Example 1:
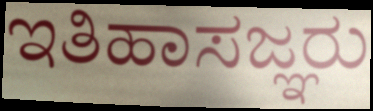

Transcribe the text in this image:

ಇತಿಹಾಸಜ್ಞರು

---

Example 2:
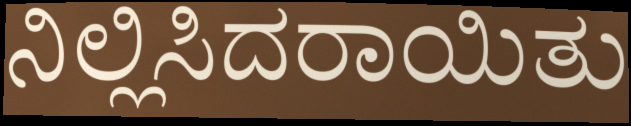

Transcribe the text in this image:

ನಿಲ್ಲಿಸಿದರಾಯಿತು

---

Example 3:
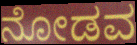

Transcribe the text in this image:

ನೋಡವ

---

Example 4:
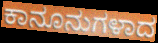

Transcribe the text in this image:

ಕಾನೂನುಗಳಾದ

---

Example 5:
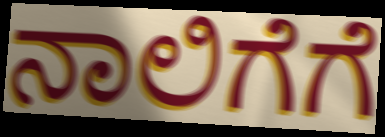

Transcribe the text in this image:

ನಾಲಿಗೆಗೆ